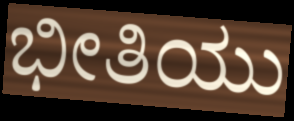
ಭೀತಿಯು